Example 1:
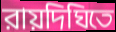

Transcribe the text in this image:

রায়দিঘিতে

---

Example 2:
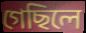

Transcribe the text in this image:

গেছিলে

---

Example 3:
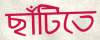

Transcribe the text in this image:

ছাঁটিতে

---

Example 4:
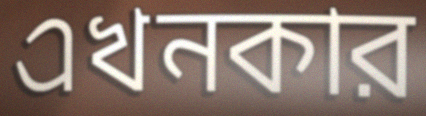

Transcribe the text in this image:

এখনকার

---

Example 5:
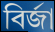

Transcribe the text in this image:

বির্জা